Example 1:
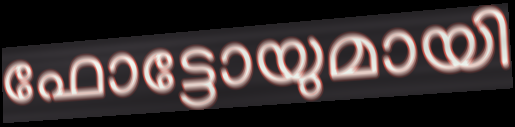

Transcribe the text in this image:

ഫോട്ടോയുമായി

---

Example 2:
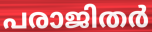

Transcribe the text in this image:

പരാജിതർ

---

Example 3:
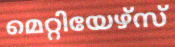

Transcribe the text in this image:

മെറ്റിയേഴ്സ്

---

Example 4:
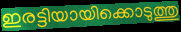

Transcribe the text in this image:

ഇരട്ടിയായിക്കൊടുത്തു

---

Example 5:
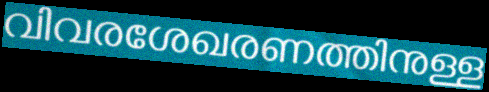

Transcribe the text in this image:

വിവരശേഖരണത്തിനുള്ള